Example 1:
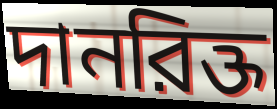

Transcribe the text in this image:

দানরিক্ত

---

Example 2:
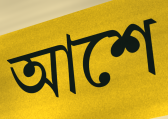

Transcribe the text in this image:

আশে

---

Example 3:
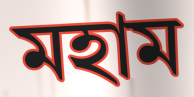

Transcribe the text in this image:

মহাম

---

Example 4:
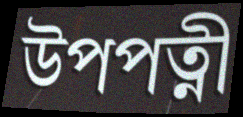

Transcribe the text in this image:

উপপত্নী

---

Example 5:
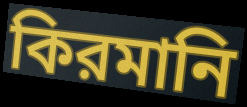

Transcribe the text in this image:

কিরমানি